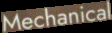
Mechanical